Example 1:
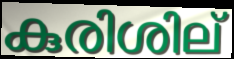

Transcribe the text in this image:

കുരിശില്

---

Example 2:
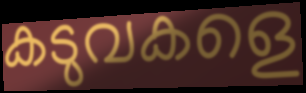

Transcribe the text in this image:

കടുവകളെ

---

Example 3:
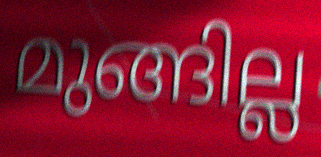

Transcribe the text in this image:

മുങ്ങില്ല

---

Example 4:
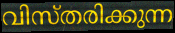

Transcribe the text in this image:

വിസ്തരിക്കുന്ന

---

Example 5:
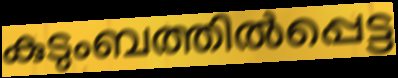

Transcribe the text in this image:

കുടുംബത്തിൽപ്പെട്ട